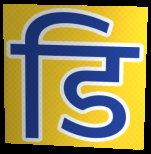
डि